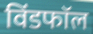
विंडफॉल